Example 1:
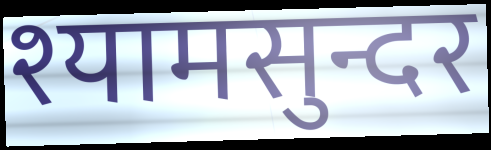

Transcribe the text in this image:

श्यामसुन्दर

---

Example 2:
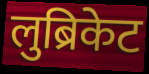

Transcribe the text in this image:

लुब्रिकेट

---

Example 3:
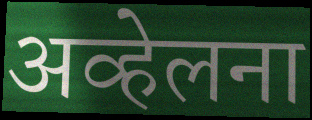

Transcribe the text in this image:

अव्हेलना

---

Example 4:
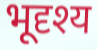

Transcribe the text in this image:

भूदृश्य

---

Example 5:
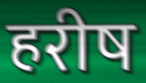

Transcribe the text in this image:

हरीष